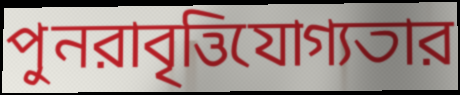
পুনরাবৃত্তিযোগ্যতার